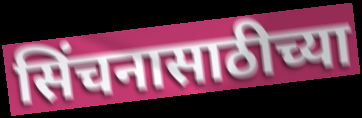
सिंचनासाठीच्या